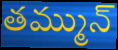
తమ్మున్